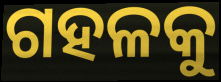
ଗହଳକୁ